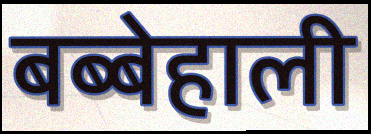
बब्बेहाली